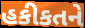
હકીકતને